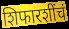
शिफारशींचं